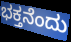
ಭಕ್ತನೆಂದು